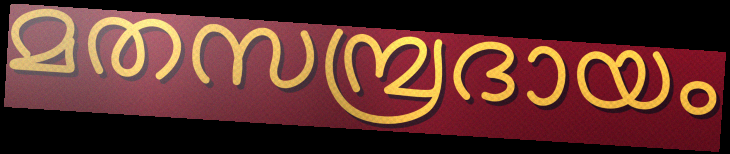
മതസമ്പ്രദായം